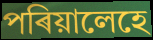
পৰিয়ালেহে